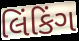
લિંકિંગ